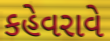
કહેવરાવે